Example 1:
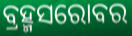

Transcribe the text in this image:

ବ୍ରହ୍ମସରୋବର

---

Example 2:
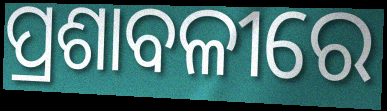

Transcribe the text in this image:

ପ୍ରଶାବଳୀରେ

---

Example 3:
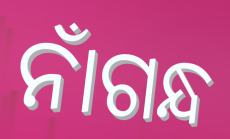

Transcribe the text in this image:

ନାଁଗନ୍ଧ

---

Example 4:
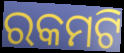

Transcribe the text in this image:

ରକମଟି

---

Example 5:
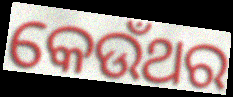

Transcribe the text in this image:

କେଉଁଥର